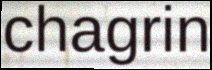
chagrin